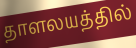
தாளலயத்தில்